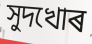
সুদখোৰ